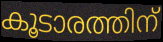
കൂടാരത്തിന്